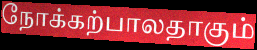
நோக்கற்பாலதாகும்